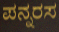
ಪನ್ನರಸ